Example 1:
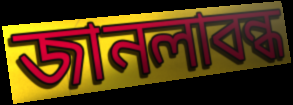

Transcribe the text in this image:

জানলাবন্ধ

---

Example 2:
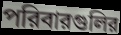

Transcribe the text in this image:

পরিবারগুলির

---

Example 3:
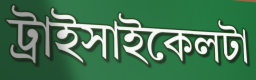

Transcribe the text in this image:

ট্রাইসাইকেলটা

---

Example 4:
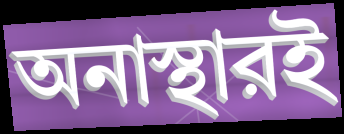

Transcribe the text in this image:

অনাস্থারই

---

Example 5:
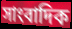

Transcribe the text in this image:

সাংবাদিক